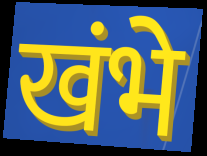
खंभे